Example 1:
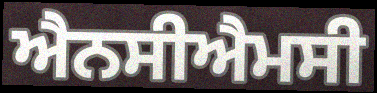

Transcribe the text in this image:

ਐਨਸੀਐਮਸੀ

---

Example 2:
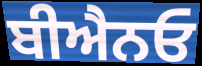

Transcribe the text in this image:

ਬੀਐਨਓ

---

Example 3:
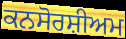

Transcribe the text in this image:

ਕਨਸੋਰਸ਼ੀਅਮ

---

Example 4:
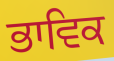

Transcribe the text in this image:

ਭਾਵਿਕ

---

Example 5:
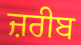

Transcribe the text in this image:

ਜ਼ਰੀਬ